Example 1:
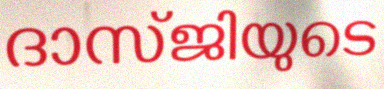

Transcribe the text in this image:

ദാസ്ജിയുടെ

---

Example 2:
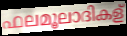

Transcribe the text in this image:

ഫലമൂലാദികള്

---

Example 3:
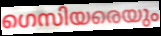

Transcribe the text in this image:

ഗെസിയരെയും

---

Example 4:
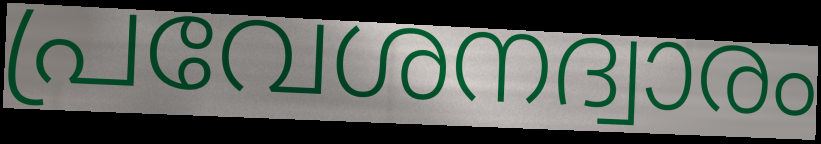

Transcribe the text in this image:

പ്രവേശനദ്വാരം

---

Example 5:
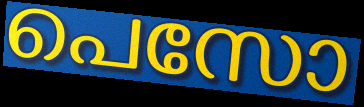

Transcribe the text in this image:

പെസോ